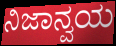
ನಿಜಾನ್ವಯ